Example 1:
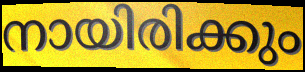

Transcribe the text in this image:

നായിരിക്കും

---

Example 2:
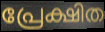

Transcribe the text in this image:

പ്രേക്ഷിത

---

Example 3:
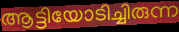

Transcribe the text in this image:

ആട്ടിയോടിച്ചിരുന്ന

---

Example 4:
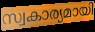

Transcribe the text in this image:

സ്വകാര്യമായി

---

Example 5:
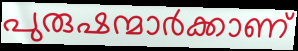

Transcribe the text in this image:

പുരുഷന്മാർക്കാണ്